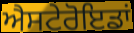
ਐਸਟੇਰੋਇਡਾਂ